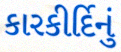
કારકીર્દિનું